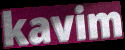
kavim